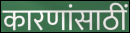
कारणांसाठीं